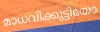
മാധവിക്കുട്ടിയോ